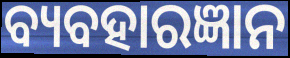
ବ୍ୟବହାରଜ୍ଞାନ